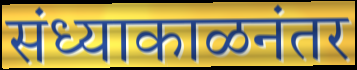
संध्याकाळनंतर